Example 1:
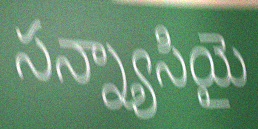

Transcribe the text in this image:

సన్న్యాసియై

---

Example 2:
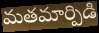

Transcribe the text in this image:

మతమార్పిడి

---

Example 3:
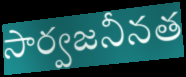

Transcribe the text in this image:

సార్వజనీనత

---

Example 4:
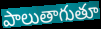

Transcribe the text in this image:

పాలుతాగుతూ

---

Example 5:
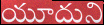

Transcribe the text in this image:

యూదుని